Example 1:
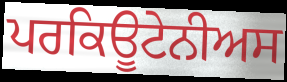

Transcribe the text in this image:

ਪਰਕਿਊਟੇਨੀਅਸ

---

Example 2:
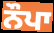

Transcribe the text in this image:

ਨੌਪਾ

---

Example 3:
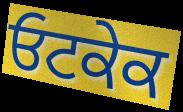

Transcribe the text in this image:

ਓਟਕੇਕ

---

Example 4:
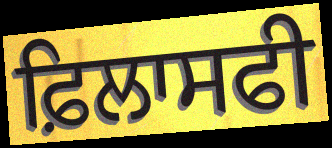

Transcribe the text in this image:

ਫ਼ਿਲਾਸਫੀ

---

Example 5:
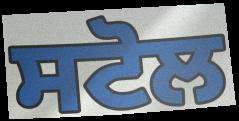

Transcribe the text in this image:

ਸਟੋਲ